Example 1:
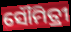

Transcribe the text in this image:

ସୌମିତ୍ରୀ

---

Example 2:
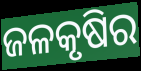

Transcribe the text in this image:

ଜଳକୃଷିର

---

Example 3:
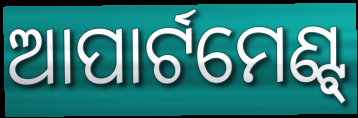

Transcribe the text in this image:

ଆପାର୍ଟମେଣ୍ଟ୍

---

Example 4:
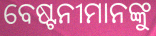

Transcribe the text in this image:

ବେଷ୍ଟନୀମାନଙ୍କୁ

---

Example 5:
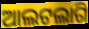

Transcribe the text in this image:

ଆଲଟଲାଗି